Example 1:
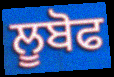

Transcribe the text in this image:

ਲੂਬੋਫ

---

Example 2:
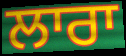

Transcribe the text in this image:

ਲਾਰਾ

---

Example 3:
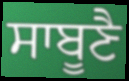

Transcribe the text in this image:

ਸਾਬੂਣੈ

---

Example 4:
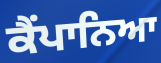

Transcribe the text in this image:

ਕੈਂਪਾਨਿਆ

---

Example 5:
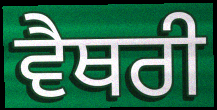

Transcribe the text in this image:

ਵੈਥਰੀ